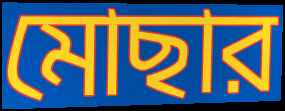
মোছার